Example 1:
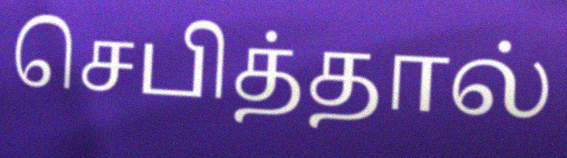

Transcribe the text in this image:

செபித்தால்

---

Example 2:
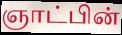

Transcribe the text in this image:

ஞாட்பின்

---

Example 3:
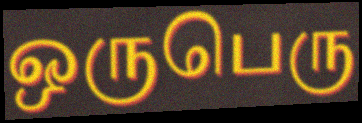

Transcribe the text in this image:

ஒருபெரு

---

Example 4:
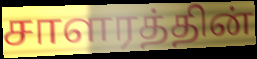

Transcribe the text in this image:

சாளரத்தின்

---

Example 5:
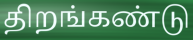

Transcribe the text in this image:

திறங்கண்டு